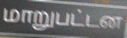
மாறுபட்டன